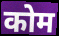
कोम